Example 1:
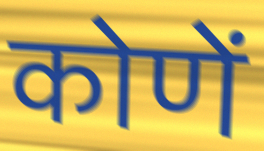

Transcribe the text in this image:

कोणें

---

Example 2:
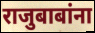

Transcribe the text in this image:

राजुबाबांना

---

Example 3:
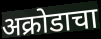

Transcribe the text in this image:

अक्रोडाचा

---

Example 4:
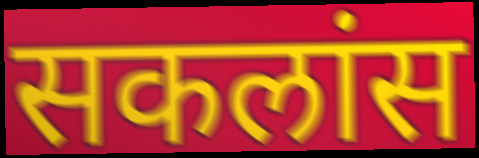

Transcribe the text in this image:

सकलांस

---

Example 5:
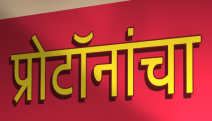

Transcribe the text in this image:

प्रोटॉनांचा